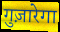
गुज़ारेगा